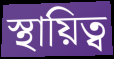
স্থায়িত্ব